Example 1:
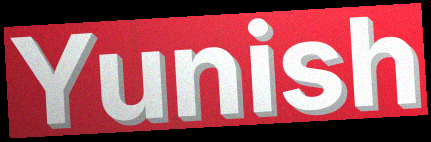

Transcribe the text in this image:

Yunish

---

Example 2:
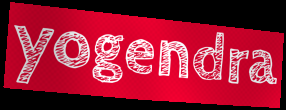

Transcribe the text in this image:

yogendra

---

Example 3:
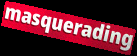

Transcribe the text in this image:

masquerading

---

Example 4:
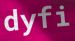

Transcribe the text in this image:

dyfi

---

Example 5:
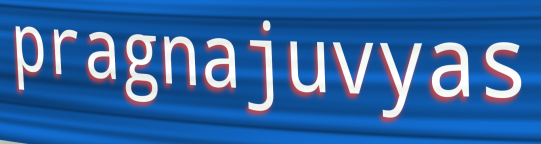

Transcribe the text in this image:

pragnajuvyas